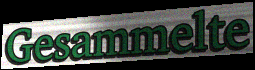
Gesammelte